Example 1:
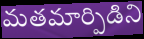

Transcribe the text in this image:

మతమార్పిడిని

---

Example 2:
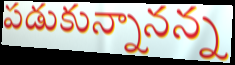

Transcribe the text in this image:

పడుకున్నానన్న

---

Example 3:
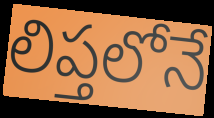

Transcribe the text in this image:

లిప్తలోనే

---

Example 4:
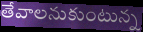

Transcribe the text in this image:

తేవాలనుకుంటున్న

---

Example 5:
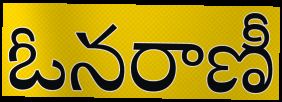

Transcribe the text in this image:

ఓనరాణీ